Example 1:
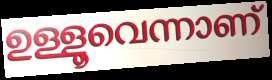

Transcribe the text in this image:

ഉള്ളൂവെന്നാണ്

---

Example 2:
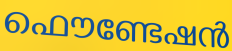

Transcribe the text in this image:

ഫൌണ്ടേഷൻ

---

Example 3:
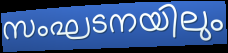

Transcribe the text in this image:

സംഘടനയിലും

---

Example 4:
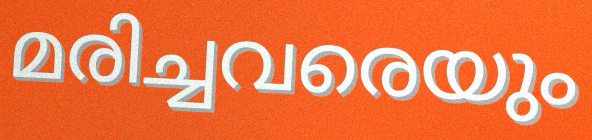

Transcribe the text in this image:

മരിച്ചവരെയും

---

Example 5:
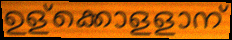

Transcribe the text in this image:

ഉള്ക്കൊളളാന്